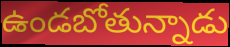
ఉండబోతున్నాడు